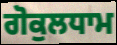
ਗੋਕੁਲਧਾਮ